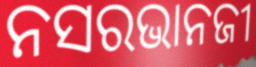
ନସରଭାନଜୀ